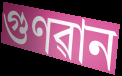
গুণৱান